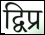
द्विप्र